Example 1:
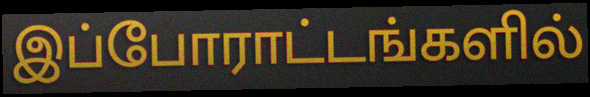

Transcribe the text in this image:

இப்போராட்டங்களில்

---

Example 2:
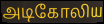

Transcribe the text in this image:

அடிகோலிய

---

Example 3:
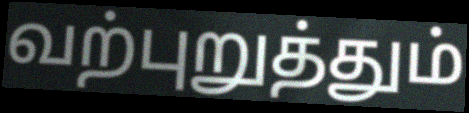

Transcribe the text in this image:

வற்புறுத்தும்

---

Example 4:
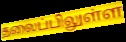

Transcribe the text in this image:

தலைப்பிலுள்ள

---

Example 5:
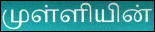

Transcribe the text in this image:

முள்ளியின்